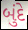
બુંદે